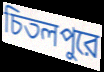
চিতলপুরে